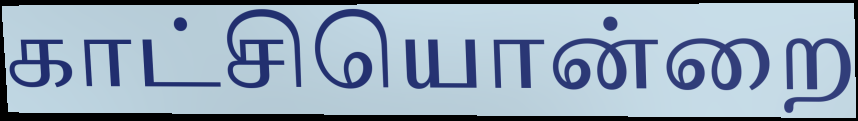
காட்சியொன்றை